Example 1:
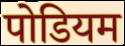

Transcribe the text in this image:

पोडियम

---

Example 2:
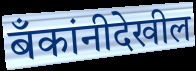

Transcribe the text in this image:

बँकांनीदेखील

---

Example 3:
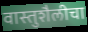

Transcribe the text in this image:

वास्तुशैलीचा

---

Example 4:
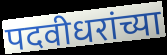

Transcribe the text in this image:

पदवीधरांच्या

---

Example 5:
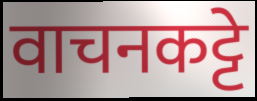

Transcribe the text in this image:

वाचनकट्टे